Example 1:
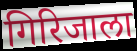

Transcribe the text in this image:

गिरिजाला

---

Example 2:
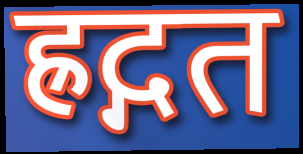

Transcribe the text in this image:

ह्रद्गत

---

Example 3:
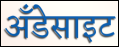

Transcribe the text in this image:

अँडेसाइट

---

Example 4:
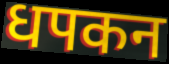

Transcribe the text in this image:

धपकन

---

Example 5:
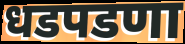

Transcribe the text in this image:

धडपडणा